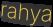
rahya